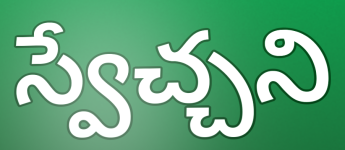
స్వేచ్చని